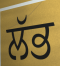
ਲੱਭ